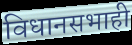
विधानसभाही